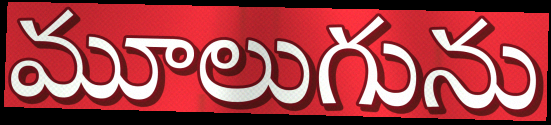
మూలుగును